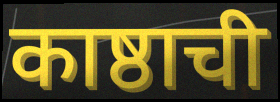
काष्ठाची